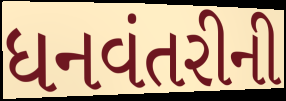
ધનવંતરીની